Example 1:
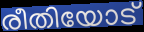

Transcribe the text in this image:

രീതിയോട്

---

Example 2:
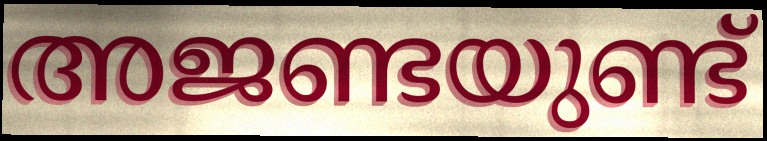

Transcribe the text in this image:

അജണ്ടയുണ്ട്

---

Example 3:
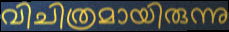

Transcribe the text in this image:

വിചിത്രമായിരുന്നു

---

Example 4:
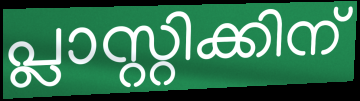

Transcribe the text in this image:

പ്ലാസ്റ്റിക്കിന്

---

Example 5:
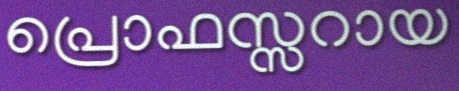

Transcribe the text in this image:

പ്രൊഫസ്സറായ